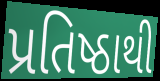
પ્રતિષ્ઠાથી